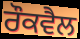
ਰੌਕਵੈਲ